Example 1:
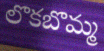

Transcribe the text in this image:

లొకబొమ్మ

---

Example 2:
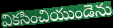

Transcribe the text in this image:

వికసించియుండెను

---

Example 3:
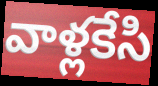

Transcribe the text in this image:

వాళ్లకేసి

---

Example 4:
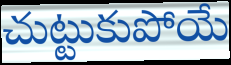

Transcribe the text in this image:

చుట్టుకుపోయే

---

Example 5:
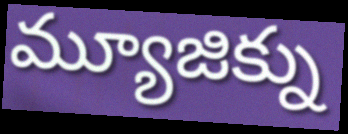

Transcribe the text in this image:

మ్యూజిక్ను